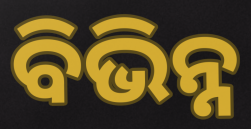
ବିଭିନ୍ନ